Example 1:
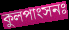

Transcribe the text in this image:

কুলপাংসনঃ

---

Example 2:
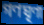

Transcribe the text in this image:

গণঘৃণা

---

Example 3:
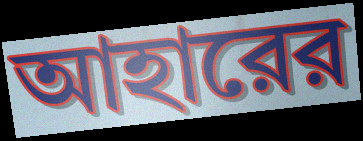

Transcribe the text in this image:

আহারের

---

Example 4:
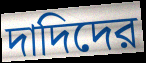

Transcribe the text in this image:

দাদিদের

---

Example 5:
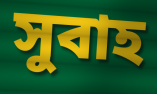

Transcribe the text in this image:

সুবাহ